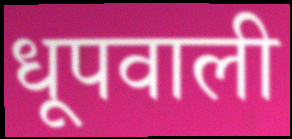
धूपवाली